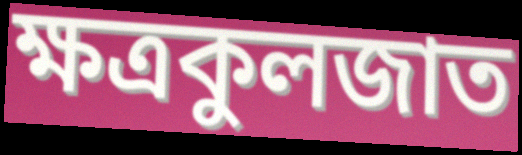
ক্ষত্রকুলজাত